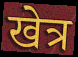
खेत्र